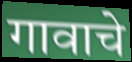
गावाचे